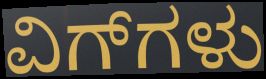
ವಿಗ್‌ಗಳು